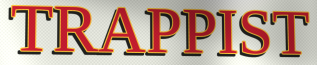
TRAPPIST